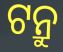
ଟନ୍ରୁ